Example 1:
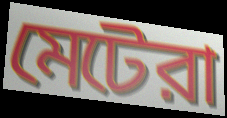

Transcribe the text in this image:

মেটেরা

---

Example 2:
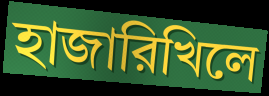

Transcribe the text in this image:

হাজারিখিলে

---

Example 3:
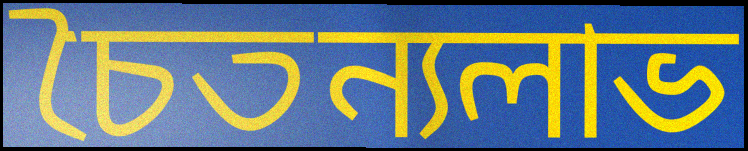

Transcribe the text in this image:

চৈতন্যলাভ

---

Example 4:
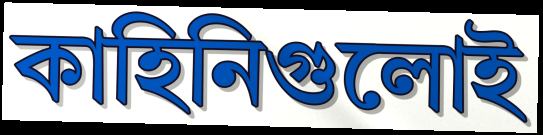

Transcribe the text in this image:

কাহিনিগুলোই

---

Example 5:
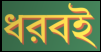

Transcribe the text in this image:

ধরবই